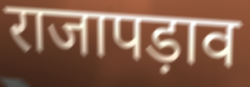
राजापड़ाव